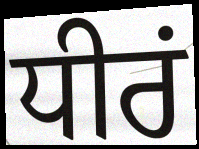
ਧੀਰਂ